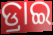
ଡ୍ରାଇ